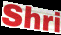
Shri